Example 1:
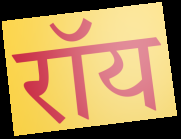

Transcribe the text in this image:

रॉय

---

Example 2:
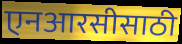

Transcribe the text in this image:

एनआरसीसाठी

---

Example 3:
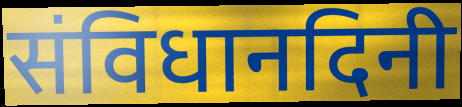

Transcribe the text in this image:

संविधानदिनी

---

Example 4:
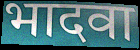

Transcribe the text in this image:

भादवा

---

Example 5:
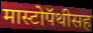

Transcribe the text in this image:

मास्टोपॅथीसह